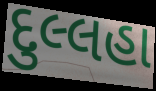
દુલ્લહા